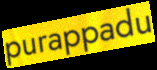
purappadu